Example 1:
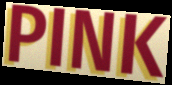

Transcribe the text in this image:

PINK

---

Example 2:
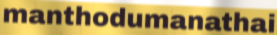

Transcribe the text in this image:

manthodumanathai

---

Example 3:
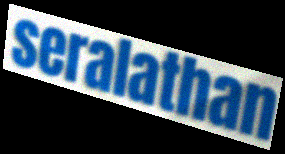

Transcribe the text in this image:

seralathan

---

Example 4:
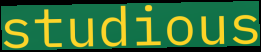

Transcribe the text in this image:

studious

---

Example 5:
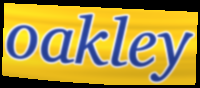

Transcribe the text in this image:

oakley